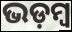
ଭଡ଼ମ୍ବ